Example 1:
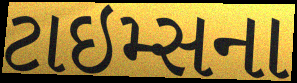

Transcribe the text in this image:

ટાઇમ્સના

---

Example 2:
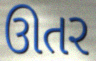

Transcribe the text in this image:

ઊતર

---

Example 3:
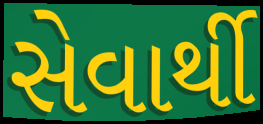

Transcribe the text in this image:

સેવાર્થી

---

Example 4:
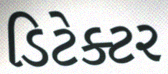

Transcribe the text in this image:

ડિટેક્ટર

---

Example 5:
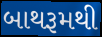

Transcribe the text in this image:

બાથરૂમથી